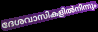
ദേശവാസികളിൽനിന്നും